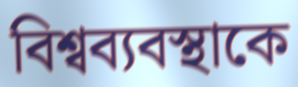
বিশ্বব্যবস্থাকে